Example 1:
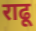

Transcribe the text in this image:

राढू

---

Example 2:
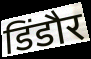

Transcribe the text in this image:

डिंडौर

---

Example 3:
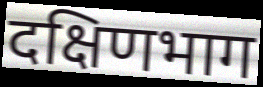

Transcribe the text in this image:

दक्षिणभाग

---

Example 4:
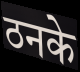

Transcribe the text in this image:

ठनके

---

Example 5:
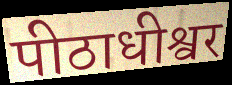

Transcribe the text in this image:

पीठाधीश्वर